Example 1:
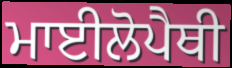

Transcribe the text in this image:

ਮਾਈਲੋਪੈਥੀ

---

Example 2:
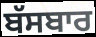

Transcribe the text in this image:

ਬੱਸਬਾਰ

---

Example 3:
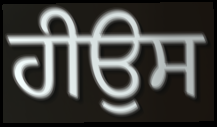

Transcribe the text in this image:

ਹੀਉਸ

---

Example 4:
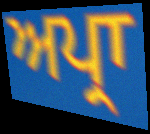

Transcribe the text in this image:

ਅਪ੍ਰਾ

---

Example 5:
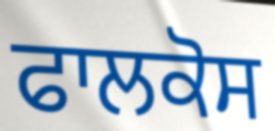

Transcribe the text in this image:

ਫਾਲਕੋਸ